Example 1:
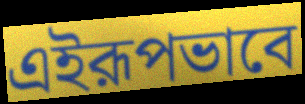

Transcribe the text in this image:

এইরূপভাবে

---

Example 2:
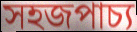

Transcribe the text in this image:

সহজপাচ্য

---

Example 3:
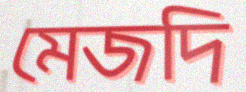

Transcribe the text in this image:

মেজদি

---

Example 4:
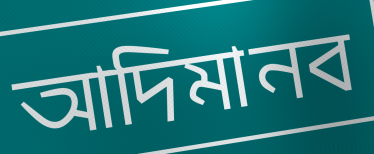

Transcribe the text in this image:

আদিমানব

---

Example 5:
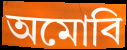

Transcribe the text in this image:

অমোবি